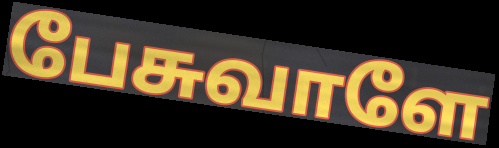
பேசுவாளே